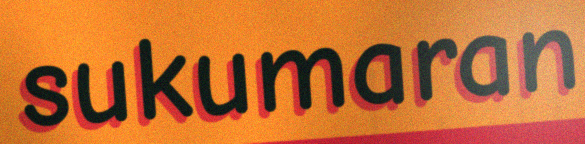
sukumaran